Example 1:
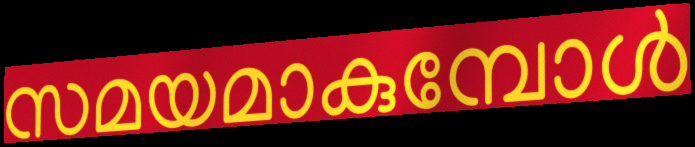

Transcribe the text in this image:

സമയമാകുമ്പോൾ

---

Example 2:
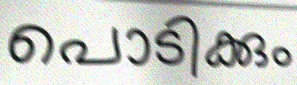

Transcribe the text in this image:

പൊടിക്കും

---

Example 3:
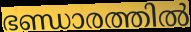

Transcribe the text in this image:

ഭണ്ഡാരത്തിൽ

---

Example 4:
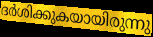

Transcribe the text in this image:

ദർശിക്കുകയായിരുന്നു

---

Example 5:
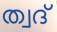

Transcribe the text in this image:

ത്വദ്